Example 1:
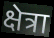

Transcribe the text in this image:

क्षेत्रा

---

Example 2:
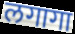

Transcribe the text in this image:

लगागा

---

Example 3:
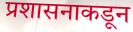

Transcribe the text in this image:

प्रशासनाकडून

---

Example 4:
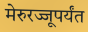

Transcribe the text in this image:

मेरुरज्जूपर्यंत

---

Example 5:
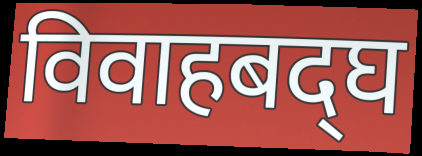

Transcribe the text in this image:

विवाहबद्घ